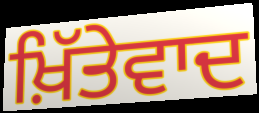
ਖ਼ਿੱਤੇਵਾਦ